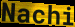
Nachi